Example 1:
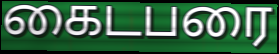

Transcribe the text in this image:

கைடபரை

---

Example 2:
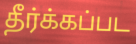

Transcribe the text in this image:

தீர்க்கப்பட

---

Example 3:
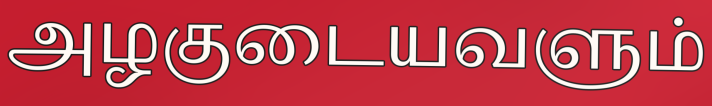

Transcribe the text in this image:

அழகுடையவளும்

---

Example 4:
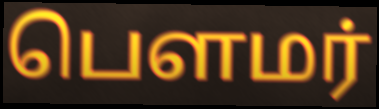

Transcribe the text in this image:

பௌமர்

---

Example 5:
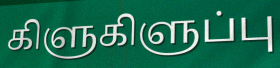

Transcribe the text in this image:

கிளுகிளுப்பு